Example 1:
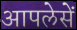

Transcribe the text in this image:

आपलेसें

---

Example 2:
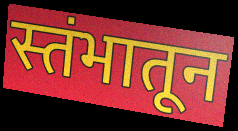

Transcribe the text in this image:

स्तंभातून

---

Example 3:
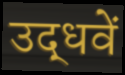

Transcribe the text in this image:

उद्धवें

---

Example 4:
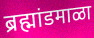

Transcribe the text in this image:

ब्रह्मांडमाळा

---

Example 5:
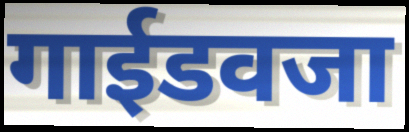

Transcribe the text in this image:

गाईडवजा